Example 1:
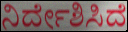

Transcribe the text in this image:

ನಿರ್ದೇಶಿಸಿದೆ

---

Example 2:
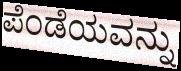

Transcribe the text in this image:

ಪೆಂಡೆಯವನ್ನು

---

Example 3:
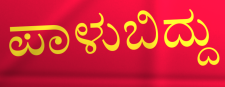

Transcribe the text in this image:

ಪಾಳುಬಿದ್ದು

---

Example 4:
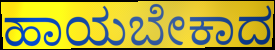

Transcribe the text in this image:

ಹಾಯಬೇಕಾದ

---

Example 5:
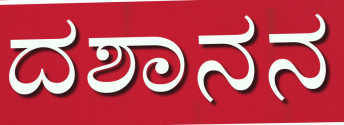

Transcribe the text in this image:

ದಶಾನನ